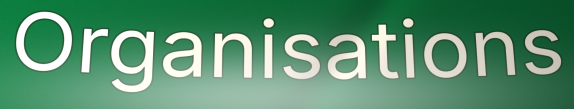
Organisations